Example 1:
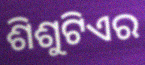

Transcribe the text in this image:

ଶିଶୁଟିଏର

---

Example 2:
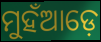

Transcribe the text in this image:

ମୁହଁଆଡ଼େ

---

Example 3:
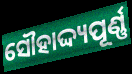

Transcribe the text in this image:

ସୌହାଦ୍ଦ୍ୟପୂର୍ଣ୍ଣ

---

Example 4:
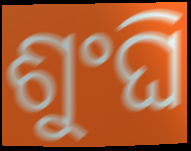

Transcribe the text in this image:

ଶୁଂଘି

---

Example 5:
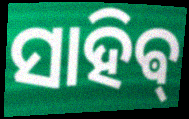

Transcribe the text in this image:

ସାହିଵ୍